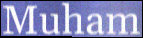
Muham